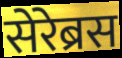
सेरेब्रस